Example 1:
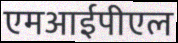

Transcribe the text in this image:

एमआईपीएल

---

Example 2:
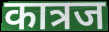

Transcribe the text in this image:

कात्रज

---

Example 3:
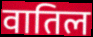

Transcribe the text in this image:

वातिल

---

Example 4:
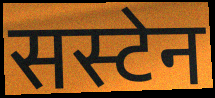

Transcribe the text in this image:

सस्टेन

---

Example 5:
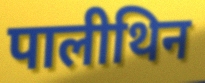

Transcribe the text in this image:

पालीथिन